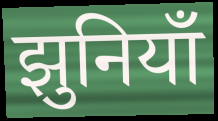
झुनियाँ